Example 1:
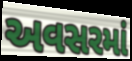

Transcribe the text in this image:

અવસરમાં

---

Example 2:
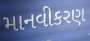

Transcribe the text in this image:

માનવીકરણ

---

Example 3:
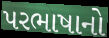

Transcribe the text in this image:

પરભાષાનો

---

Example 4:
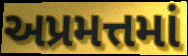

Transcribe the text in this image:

અપ્રમત્તમાં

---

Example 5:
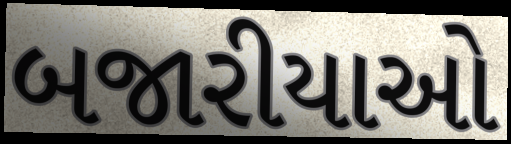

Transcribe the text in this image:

બજારીયાઓ